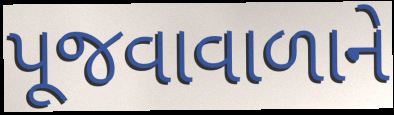
પૂજવાવાળાને